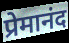
प्रेमानंद